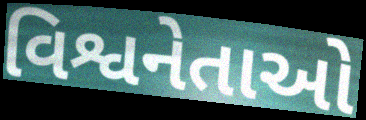
વિશ્વનેતાઓ